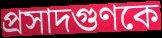
প্রসাদগুণকে